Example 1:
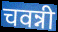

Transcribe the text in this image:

चवन्नी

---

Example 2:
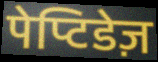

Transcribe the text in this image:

पेप्टिडेज़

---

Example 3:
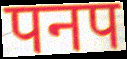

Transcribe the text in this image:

पनप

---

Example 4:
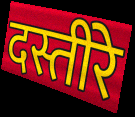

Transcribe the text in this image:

दस्तीरे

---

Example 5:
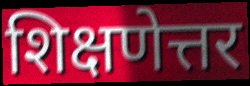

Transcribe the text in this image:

शिक्षणेत्तर